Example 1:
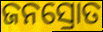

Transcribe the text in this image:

ଜନସ୍ରୋତ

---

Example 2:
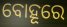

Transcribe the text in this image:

ବୋହୂରେ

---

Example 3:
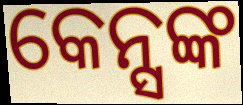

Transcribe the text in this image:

କେନ୍ସଙ୍କ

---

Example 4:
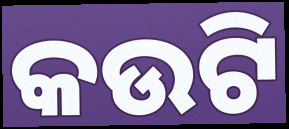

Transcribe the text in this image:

କଉଟି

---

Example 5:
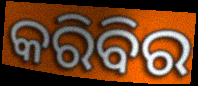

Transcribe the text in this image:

କରିବିର